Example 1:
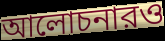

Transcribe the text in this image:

আলোচনারও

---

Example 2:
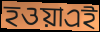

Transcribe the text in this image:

হওয়াএই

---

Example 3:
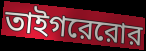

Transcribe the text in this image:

তাইগরেরোর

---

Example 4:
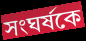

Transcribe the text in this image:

সংঘর্ষকে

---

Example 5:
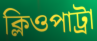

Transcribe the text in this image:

ক্লিওপাট্রা